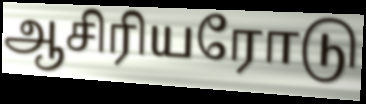
ஆசிரியரோடு